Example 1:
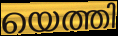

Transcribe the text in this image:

യെത്തി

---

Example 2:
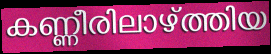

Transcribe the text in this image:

കണ്ണീരിലാഴ്ത്തിയ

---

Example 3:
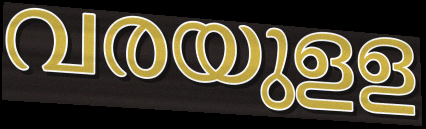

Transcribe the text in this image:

വരയുളള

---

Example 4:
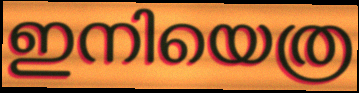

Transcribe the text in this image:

ഇനിയെത്ര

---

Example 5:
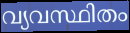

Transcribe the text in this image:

വ്യവസ്ഥിതം